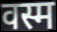
वस्म